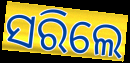
ସରିଲେ